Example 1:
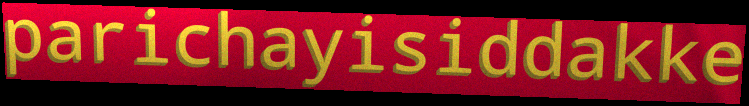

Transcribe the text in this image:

parichayisiddakke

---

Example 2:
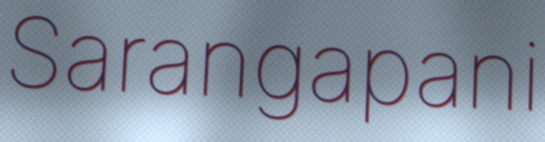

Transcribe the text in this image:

Sarangapani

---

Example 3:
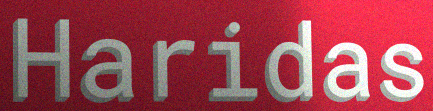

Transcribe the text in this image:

Haridas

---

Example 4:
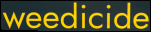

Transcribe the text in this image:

weedicide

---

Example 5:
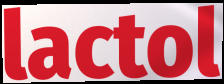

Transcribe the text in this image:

lactol